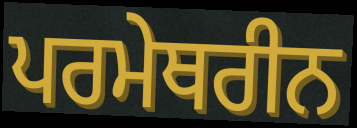
ਪਰਮੇਥਰੀਨ